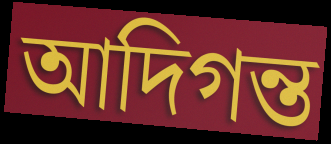
আদিগন্ত